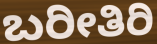
ಬರೀತಿರಿ